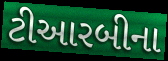
ટીઆરબીના